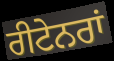
ਰੀਟੇਨਰਾਂ